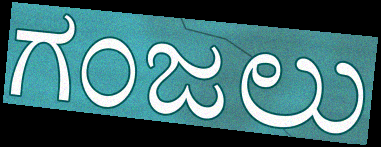
ಗಂಜಲು